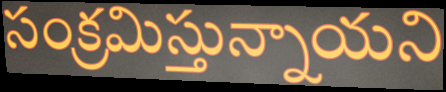
సంక్రమిస్తున్నాయని